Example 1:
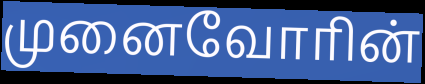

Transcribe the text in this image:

முனைவோரின்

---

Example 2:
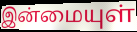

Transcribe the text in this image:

இன்மையுள்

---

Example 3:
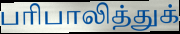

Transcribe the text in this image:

பரிபாலித்துக்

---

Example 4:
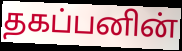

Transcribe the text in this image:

தகப்பனின்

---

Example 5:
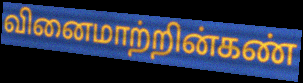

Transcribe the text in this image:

வினைமாற்றின்கண்